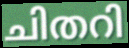
ചിതറി